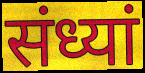
संध्यां